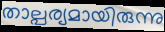
താല്പര്യമായിരുന്നു